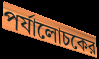
পর্যালোচকের